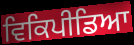
ਵਿਕਿਪੀਡਿਆ